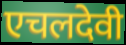
एचलदेवी